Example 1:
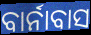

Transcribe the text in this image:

ବାର୍ନାବାସ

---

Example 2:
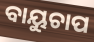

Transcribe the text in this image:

ବାୟୁଚାପ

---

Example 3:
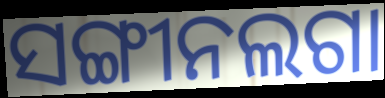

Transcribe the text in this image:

ସଙ୍ଗୀନଲଗା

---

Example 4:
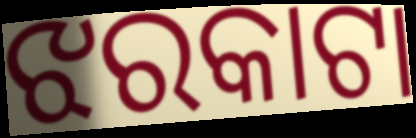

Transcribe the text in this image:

ଝରକାଟା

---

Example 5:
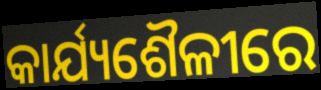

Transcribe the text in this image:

କାର୍ଯ୍ୟଶୈଳୀରେ